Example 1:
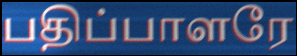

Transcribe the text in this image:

பதிப்பாளரே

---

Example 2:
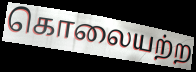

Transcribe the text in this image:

கொலையற்ற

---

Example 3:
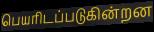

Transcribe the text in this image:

பெயரிடப்படுகின்றன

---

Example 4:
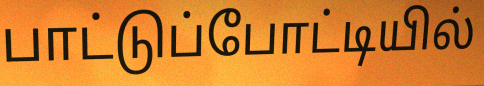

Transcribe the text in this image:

பாட்டுப்போட்டியில்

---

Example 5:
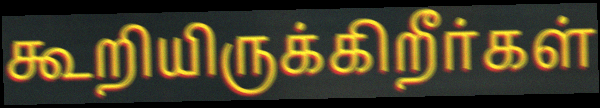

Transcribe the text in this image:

கூறியிருக்கிறீர்கள்